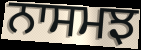
ਨਾਸਮਝ